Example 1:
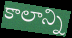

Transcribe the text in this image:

కాలాన్ని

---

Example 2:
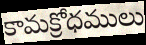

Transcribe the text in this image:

కామక్రోధములు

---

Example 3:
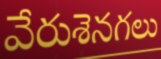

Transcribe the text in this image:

వేరుశెనగలు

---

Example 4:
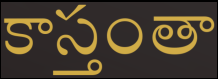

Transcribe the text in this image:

కాస్తంతా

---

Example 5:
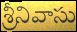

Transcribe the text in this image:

శ్రీనివాసు